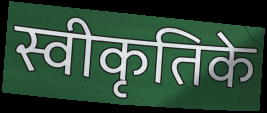
स्वीकृतिके